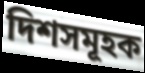
দিশসমূহক